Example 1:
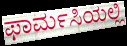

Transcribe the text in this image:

ಫಾರ್ಮಸಿಯಲ್ಲಿ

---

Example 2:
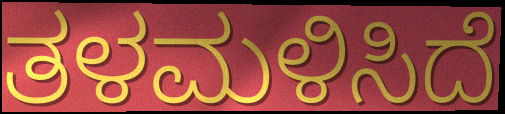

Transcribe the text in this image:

ತಳಮಳಿಸಿದೆ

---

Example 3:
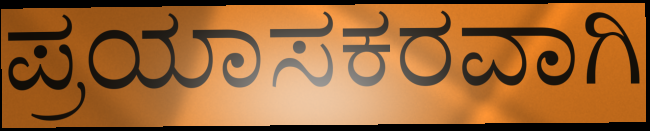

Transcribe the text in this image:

ಪ್ರಯಾಸಕರವಾಗಿ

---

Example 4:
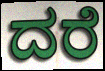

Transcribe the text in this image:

ದರೆ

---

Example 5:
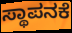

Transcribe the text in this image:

ಸ್ಥಾಪನಕೆ